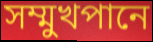
সম্মুখপানে